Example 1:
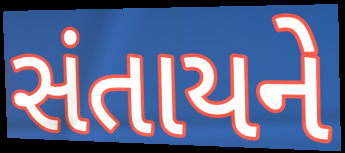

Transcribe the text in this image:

સંતાયને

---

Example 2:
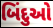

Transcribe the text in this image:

બિંદુઓ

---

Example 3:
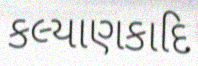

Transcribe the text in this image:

કલ્યાણકાદિ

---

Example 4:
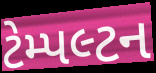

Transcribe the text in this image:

ટેમ્પલ્ટન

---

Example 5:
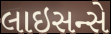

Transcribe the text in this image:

લાઇસન્સે